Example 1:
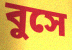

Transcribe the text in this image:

বুসে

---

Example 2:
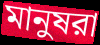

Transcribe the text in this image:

মানুষরা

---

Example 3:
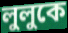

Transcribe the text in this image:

লুলুকে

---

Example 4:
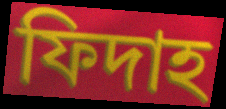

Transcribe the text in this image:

ফিদাহ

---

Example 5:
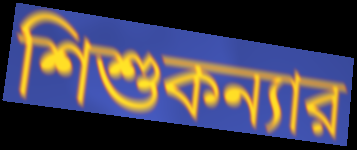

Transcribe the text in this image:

শিশুকন্যার